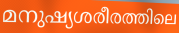
മനുഷ്യശരീരത്തിലെ